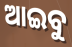
ଆଇବୁ